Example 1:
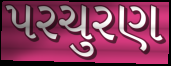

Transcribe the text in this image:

પરચુરણ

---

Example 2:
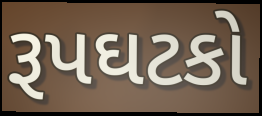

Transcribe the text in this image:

રૂપઘટકો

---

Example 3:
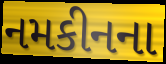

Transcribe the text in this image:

નમકીનના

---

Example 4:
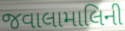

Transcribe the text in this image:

જવાલામાલિની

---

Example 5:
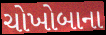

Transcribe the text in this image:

ચોખોબાના